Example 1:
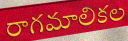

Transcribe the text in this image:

రాగమాలికల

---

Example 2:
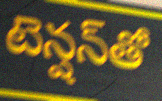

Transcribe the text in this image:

టెన్షన్‌తో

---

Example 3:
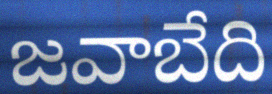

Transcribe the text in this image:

జవాబేది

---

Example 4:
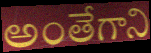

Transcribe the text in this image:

అంతేగాని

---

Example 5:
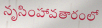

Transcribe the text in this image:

నృసింహావతారంలో